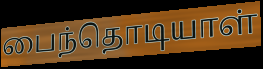
பைந்தொடியாள்